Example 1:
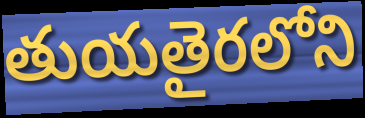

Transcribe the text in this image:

తుయతైరలోని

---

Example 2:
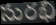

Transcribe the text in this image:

సురభి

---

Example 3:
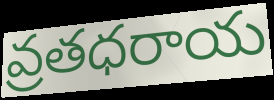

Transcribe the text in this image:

వ్రతధరాయ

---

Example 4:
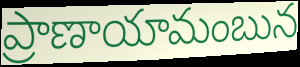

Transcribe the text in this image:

ప్రాణాయామంబున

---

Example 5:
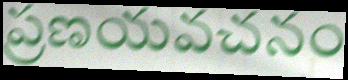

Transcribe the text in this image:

ప్రణయవచనం